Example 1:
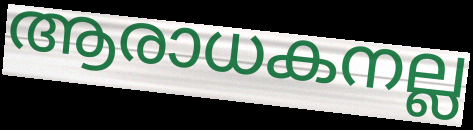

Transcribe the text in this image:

ആരാധകനല്ല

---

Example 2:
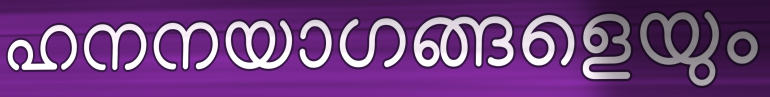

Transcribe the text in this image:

ഹനനയാഗങ്ങളെയും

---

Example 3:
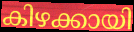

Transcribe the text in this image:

കിഴക്കായി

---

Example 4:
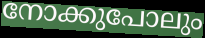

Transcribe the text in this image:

നോക്കുപോലും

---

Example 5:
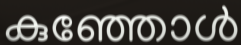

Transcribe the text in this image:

കുഞ്ഞോൾ